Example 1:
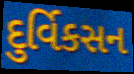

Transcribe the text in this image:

દુર્વિકસન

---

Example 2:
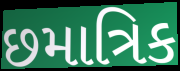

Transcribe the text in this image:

છમાત્રિક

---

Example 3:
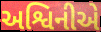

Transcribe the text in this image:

અશ્વિનીએ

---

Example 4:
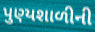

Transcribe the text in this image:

પુણ્યશાળીની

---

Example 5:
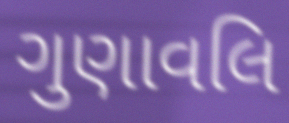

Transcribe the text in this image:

ગુણાવલિ